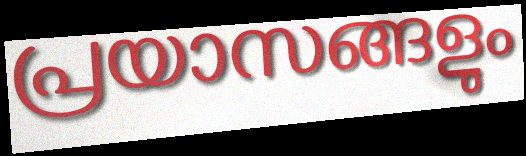
പ്രയാസങ്ങളും